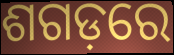
ଶଗଡ଼ରେ